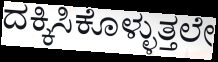
ದಕ್ಕಿಸಿಕೊಳ್ಳುತ್ತಲೇ